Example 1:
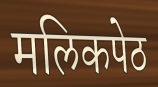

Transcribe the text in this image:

मलिकपेठ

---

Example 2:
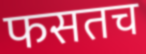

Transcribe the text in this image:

फसतच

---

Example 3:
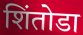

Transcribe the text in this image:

शिंतोडा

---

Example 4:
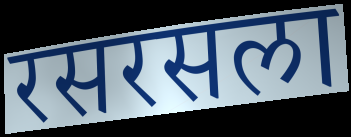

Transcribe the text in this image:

रसरसला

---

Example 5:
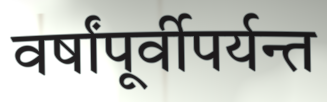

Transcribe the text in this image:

वर्षांपूर्वीपर्यन्त